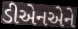
ડીએનએને